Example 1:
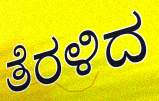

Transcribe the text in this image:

ತೆರಳಿದ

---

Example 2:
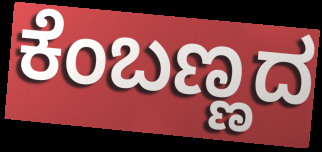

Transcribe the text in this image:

ಕೆಂಬಣ್ಣದ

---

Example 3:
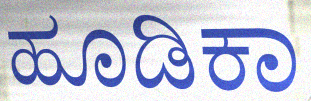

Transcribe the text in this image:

ಹೂಡಿಕಾ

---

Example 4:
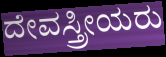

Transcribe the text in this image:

ದೇವಸ್ತ್ರೀಯರು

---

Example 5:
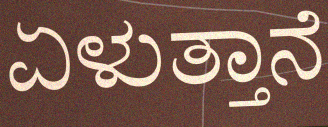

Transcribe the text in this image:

ಏಳುತ್ತಾನೆ